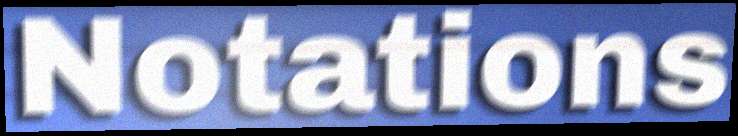
Notations